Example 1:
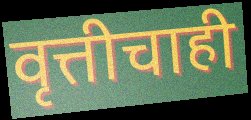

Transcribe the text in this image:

वृत्तीचाही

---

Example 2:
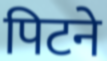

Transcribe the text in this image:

पिटने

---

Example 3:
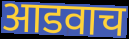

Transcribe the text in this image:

आडवाच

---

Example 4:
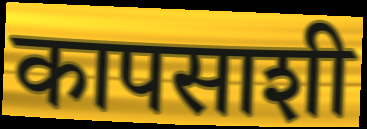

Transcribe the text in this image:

कापसाशी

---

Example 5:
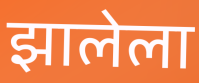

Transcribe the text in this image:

झालेला